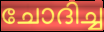
ചോദിച്ച